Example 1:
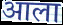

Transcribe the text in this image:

आला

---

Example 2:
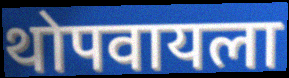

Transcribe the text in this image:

थोपवायला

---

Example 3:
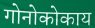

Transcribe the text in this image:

गोनोकोकाय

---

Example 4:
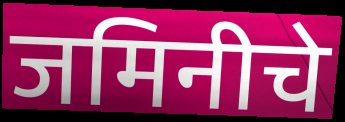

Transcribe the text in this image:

जमिनीचे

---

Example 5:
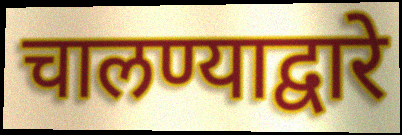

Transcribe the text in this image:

चालण्याद्वारे